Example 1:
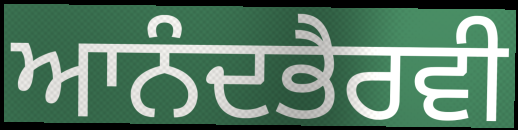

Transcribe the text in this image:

ਆਨੰਦਭੈਰਵੀ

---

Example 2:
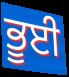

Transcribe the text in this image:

ਭੂਈ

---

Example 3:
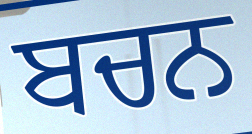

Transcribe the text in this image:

ਬਚਨ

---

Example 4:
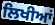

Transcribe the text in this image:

ਲਿਖੀਆਂ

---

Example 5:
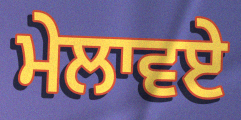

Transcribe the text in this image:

ਮੇਲਾਵਏ